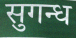
सुगन्ध